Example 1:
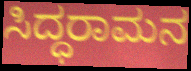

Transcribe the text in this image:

ಸಿದ್ಧರಾಮನ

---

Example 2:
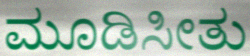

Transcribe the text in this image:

ಮೂಡಿಸೀತು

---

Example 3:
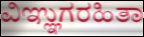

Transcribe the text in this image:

ವಿಞ್ಞುಗರಹಿತಾ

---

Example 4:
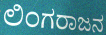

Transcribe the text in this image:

ಲಿಂಗರಾಜನ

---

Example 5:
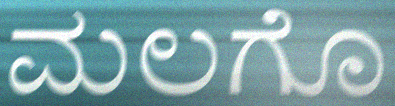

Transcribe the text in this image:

ಮಲಗೊ